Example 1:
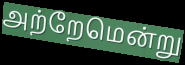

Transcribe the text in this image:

அற்றேமென்று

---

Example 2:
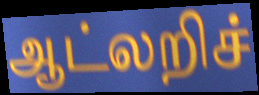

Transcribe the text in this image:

ஆட்லறிச்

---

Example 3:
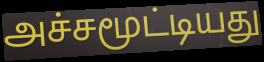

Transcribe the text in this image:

அச்சமூட்டியது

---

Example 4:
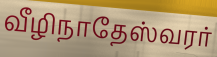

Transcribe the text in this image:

வீழிநாதேஸ்வரர்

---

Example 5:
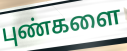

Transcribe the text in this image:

புண்களை